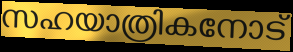
സഹയാത്രികനോട്